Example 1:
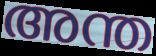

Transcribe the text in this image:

അന്ത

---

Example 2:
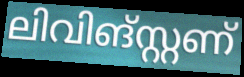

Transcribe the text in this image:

ലിവിങ്സ്റ്റണ്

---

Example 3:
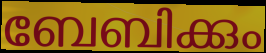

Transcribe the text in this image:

ബേബിക്കും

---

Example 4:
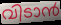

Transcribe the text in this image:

വിടാൻ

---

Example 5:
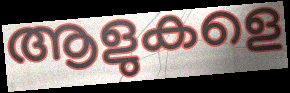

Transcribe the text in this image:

ആളുകളെ